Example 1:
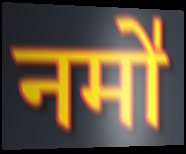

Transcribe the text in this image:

नमो॑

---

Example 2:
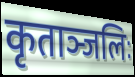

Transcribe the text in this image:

कृताञ्जलिः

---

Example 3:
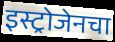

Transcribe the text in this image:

इस्ट्रोजेनचा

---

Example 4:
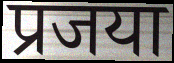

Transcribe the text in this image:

प्रजया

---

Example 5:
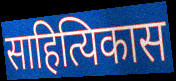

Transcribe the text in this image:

साहित्यिकास